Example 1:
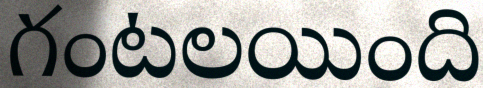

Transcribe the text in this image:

గంటలయింది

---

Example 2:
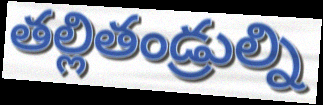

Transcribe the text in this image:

తల్లితండ్రుల్ని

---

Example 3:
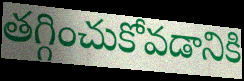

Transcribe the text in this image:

తగ్గించుకోవడానికి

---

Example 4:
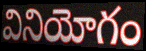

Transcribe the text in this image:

వినియోగం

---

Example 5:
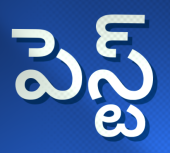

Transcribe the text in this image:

పెస్ట్